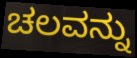
ಚಲವನ್ನು